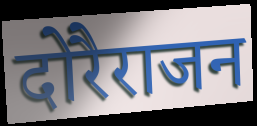
दोरैराजन